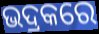
ଭଦ୍ରକରେ